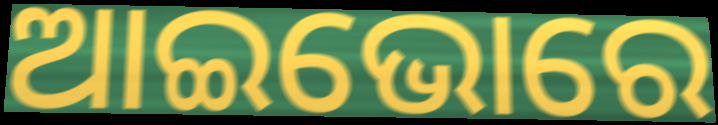
ଆଇଭୋରେ